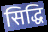
सिद्धि